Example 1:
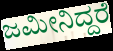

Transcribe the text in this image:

ಜಮೀನಿದ್ದರೆ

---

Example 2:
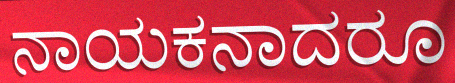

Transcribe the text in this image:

ನಾಯಕನಾದರೂ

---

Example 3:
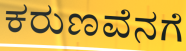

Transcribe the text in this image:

ಕರುಣವೆನಗೆ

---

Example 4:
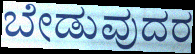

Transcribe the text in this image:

ಬೇಡುವುದರ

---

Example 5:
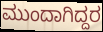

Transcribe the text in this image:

ಮುಂದಾಗಿದ್ದರ